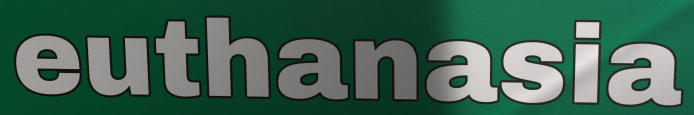
euthanasia